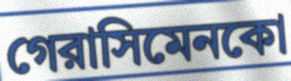
গেরাসিমেনকো